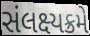
સંલક્ષ્યક્રમે